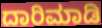
ದಾರಿಮಾಡಿ